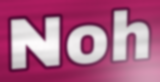
Noh